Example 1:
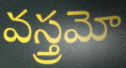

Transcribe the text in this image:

వస్త్రమో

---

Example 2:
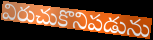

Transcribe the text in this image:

విరుచుకొనిపడును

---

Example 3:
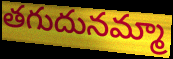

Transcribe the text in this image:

తగుదునమ్మా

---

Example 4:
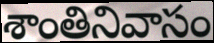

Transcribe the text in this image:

శాంతినివాసం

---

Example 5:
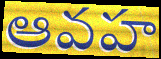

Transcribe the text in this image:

ఆవహ